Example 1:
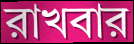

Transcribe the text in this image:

রাখবার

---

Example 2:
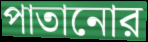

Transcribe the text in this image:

পাতানোর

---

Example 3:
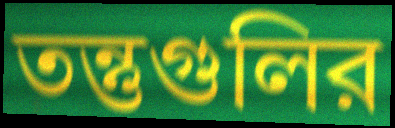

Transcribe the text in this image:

তন্তুগুলির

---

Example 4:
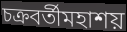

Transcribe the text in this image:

চক্রবর্তীমহাশয়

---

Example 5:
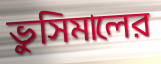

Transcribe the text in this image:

ভুসিমালের